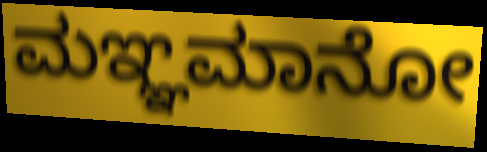
ಮಞ್ಞಮಾನೋ